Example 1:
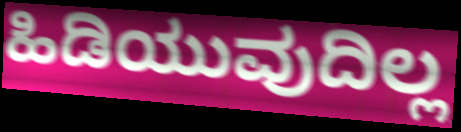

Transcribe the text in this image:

ಹಿಡಿಯುವುದಿಲ್ಲ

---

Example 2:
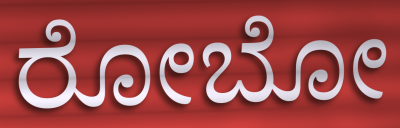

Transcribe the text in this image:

ರೋಬೋ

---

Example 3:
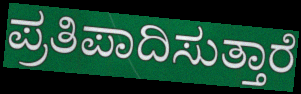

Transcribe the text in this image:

ಪ್ರತಿಪಾದಿಸುತ್ತಾರೆ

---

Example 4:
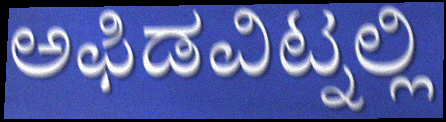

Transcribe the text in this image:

ಅಫಿಡವಿಟ್ನಲ್ಲಿ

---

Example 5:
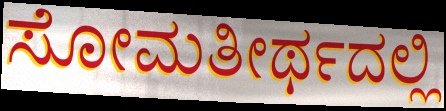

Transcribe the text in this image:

ಸೋಮತೀರ್ಥದಲ್ಲಿ